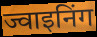
ज्वाइनिंग